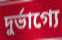
দুর্ভাগ্যে